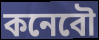
কনেবৌ